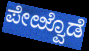
ಪೇೞ್ವೊಡೆ